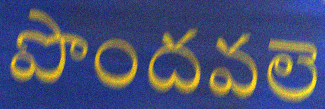
పొందవలె